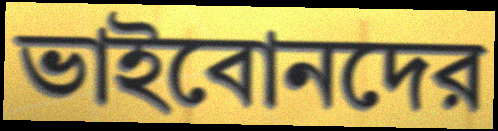
ভাইবোনদের